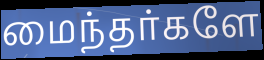
மைந்தர்களே